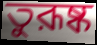
তুরূষ্ক